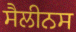
ਸੈਲੀਨਸ